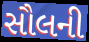
સૌલની